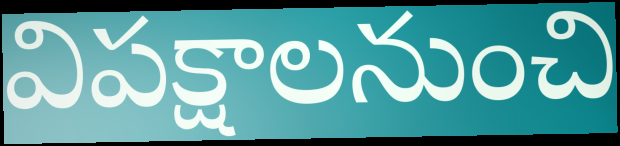
విపక్షాలనుంచి